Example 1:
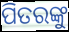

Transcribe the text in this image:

ପିତରଙ୍କୁ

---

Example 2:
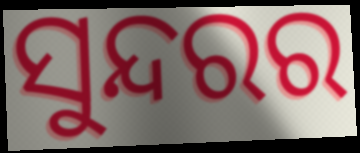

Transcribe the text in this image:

ସୁନ୍ଦରର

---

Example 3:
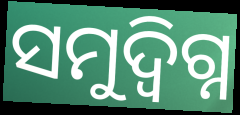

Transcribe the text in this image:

ସମୁଦ୍ବିଗ୍ନ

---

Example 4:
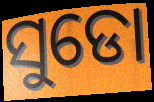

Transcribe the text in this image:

ସୁଡୋ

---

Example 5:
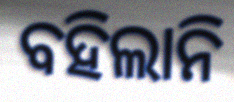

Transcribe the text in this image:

ବହିଲାନି